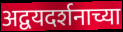
अद्वयदर्शनाच्या